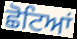
ਛੋਟਿਆਂ